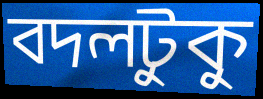
বদলটুকু